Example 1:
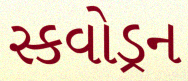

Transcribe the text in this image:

સ્કવોડ્રન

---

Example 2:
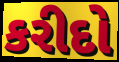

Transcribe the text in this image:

કરીદો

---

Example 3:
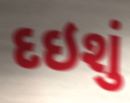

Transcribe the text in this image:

દઇશું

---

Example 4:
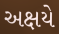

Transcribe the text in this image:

અક્ષયે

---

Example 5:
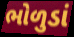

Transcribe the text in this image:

ભોળુડાં